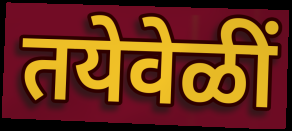
तयेवेळीं